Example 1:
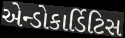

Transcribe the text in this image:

એન્ડોકાર્ડિટિસ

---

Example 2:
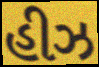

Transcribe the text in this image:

હીઝ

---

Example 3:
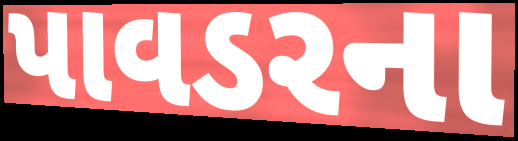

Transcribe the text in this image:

પાવડરના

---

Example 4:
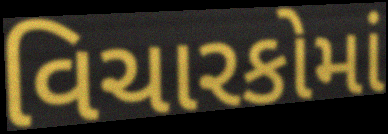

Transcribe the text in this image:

વિચારકોમાં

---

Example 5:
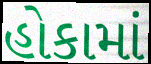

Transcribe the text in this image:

હોકામાં